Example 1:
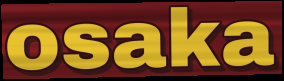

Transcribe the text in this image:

osaka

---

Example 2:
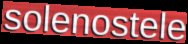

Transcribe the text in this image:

solenostele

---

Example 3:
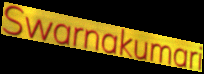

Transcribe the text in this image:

Swarnakumari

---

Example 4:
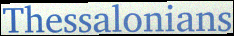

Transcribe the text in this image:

Thessalonians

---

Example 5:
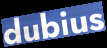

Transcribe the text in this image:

dubius